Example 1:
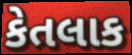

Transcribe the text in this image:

કેતલાક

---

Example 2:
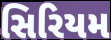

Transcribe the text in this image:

સિરિયમ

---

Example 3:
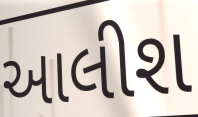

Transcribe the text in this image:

આલીશ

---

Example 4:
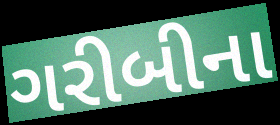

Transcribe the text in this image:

ગરીબીના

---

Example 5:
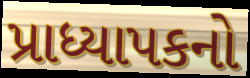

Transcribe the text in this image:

પ્રાધ્યાપકનો